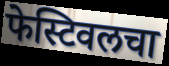
फेस्टिवलचा